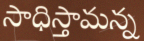
సాధిస్తామన్న